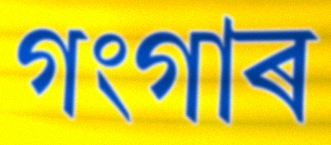
গংগাৰ